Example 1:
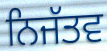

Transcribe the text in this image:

ਨਿਜੱਤਵ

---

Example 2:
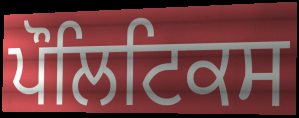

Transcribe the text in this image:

ਪੌਲਿਟਿਕਸ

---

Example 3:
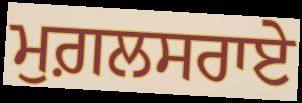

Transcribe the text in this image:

ਮੁਗ਼ਲਸਰਾਏ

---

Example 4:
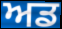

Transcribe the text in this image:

ਅਡ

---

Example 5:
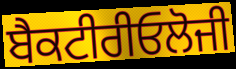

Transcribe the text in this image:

ਬੈਕਟੀਰੀਓਲੋਜੀ